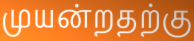
முயன்றதற்கு